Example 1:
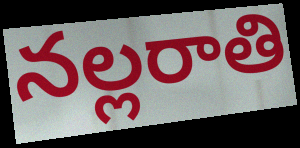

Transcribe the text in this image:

నల్లరాతి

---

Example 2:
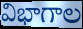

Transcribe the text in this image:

విభాగాల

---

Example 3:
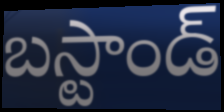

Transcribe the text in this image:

బస్టాండ్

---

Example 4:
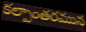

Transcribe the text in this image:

కల్పాంతరమున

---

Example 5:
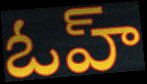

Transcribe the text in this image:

ఓహ్